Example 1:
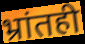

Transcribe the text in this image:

भ्रांतही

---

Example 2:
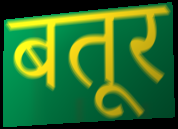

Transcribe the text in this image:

बतूर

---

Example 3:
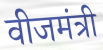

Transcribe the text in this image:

वीजमंत्री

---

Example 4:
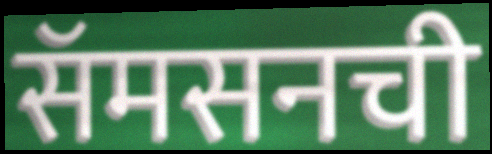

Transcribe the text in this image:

सॅमसनची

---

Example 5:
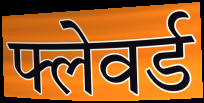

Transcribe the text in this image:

फ्लेवर्ड